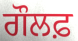
ਗੌਲਫ਼